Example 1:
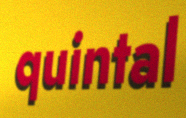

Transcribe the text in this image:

quintal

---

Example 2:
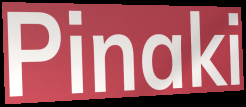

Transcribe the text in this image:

Pinaki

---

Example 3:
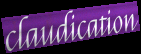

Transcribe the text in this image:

claudication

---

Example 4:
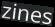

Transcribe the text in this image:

zines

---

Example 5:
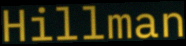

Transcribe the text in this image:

Hillman